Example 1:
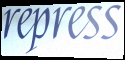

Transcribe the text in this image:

repress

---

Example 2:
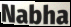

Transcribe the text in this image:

Nabha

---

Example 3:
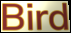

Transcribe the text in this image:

Bird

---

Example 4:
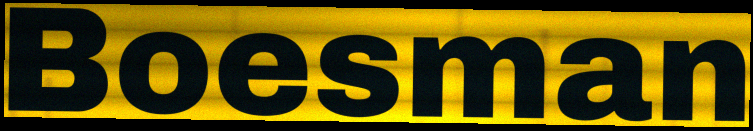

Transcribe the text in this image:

Boesman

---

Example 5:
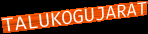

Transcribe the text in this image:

TALUKOGUJARAT